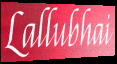
Lallubhai